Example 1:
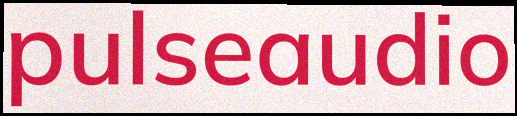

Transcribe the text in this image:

pulseaudio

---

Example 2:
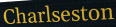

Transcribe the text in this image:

Charlseston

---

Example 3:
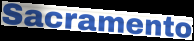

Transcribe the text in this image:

Sacramento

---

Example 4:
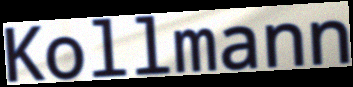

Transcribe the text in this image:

Kollmann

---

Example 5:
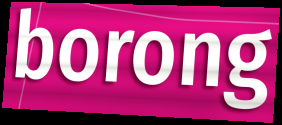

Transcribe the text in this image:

borong